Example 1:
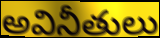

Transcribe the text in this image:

అవినీతులు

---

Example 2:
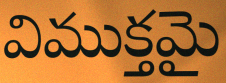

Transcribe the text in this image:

విముక్తమై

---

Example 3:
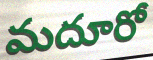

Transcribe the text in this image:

మదూరో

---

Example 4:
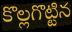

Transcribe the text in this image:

కొల్లగొట్టిన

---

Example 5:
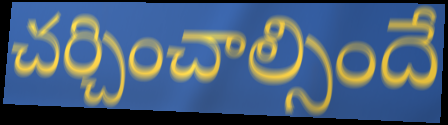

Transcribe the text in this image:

చర్చించాల్సిందే